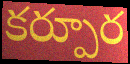
కర్పూర